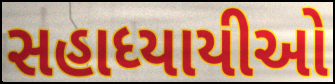
સહાધ્યાયીઓ